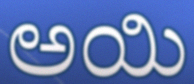
ಅಯಿ